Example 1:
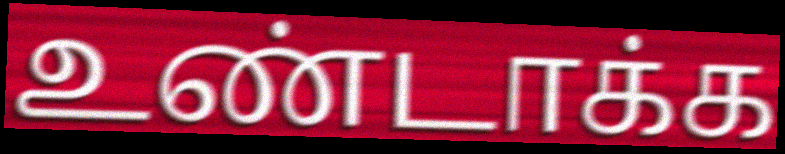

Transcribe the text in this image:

உண்டாக்க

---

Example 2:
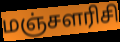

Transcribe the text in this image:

மஞ்சளரிசி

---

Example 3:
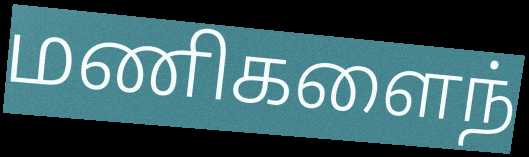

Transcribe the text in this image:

மணிகளைந்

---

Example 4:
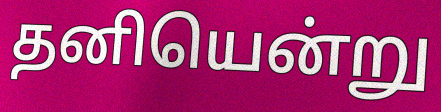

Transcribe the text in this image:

தனியென்று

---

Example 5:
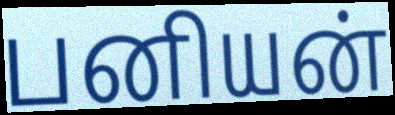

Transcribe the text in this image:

பனியன்